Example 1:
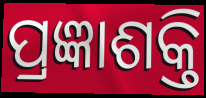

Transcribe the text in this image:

ପ୍ରଜ୍ଞାଶକ୍ତି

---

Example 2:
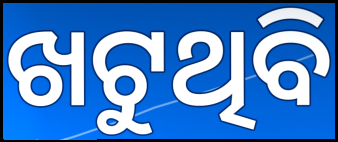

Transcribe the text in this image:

ଖଟୁଥିବି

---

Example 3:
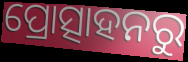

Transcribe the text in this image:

ପ୍ରୋତ୍ସାହନରୁ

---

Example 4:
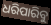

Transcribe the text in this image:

ଧରିପାରିବୁ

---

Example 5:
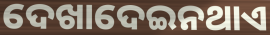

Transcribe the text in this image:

ଦେଖାଦେଇନଥାଏ